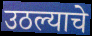
उठल्याचे